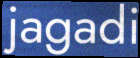
jagadi